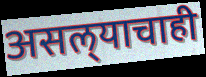
असल्याचाही